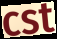
cst